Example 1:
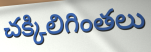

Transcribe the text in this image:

చక్కిలిగింతలు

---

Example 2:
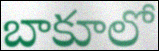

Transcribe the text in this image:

బాకూలో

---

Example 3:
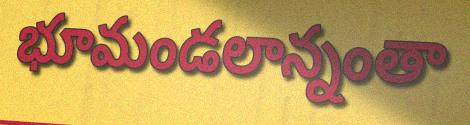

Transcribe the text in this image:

భూమండలాన్నంతా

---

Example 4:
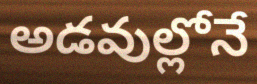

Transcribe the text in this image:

అడవుల్లోనే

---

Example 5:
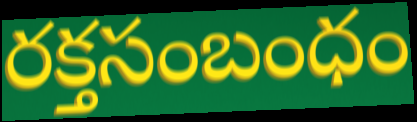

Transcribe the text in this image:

రక్తసంబంధం